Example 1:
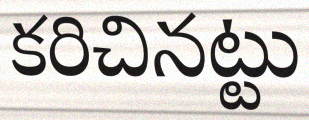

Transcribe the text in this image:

కరిచినట్టు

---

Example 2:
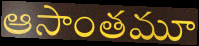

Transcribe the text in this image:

ఆసాంతమూ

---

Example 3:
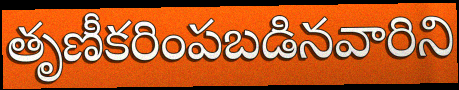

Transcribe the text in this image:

తృణీకరింపబడినవారిని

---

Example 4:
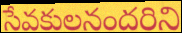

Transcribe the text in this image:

సేవకులనందరిని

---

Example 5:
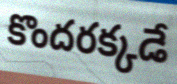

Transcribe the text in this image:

కొందరక్కడే